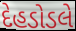
દેહડોડલે